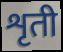
शृती